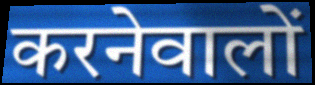
करनेवालों